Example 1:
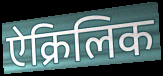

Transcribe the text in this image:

ऐक्रिलिक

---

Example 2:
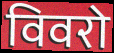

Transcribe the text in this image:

विवरो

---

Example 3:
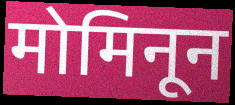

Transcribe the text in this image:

मोमिनून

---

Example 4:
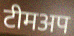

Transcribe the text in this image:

टीमअप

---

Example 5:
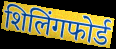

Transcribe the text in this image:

शिलिंगफोर्ड